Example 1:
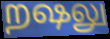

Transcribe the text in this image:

றஷலு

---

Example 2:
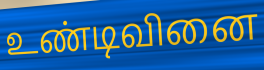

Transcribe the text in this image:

உண்டிவினை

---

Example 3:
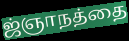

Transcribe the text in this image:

ஜ்ஞாநத்தை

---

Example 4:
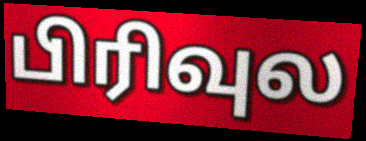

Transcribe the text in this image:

பிரிவுல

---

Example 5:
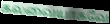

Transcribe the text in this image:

கலவையாகவே